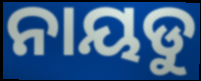
ନାୟଡୁ